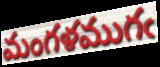
మంగళముగఁ